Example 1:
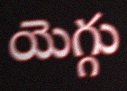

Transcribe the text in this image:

యెగ్గు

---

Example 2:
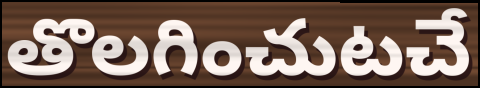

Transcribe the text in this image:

తొలగించుటచే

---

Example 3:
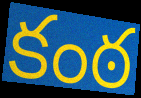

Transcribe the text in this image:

కంఠ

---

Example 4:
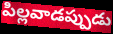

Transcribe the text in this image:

పిల్లవాడప్పుడు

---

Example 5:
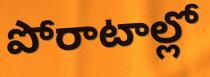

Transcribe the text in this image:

పోరాటాల్లో